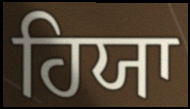
ਹਿਯਾ